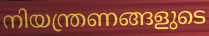
നിയന്ത്രണങ്ങളുടെ